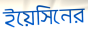
ইয়েসিনের